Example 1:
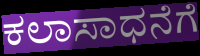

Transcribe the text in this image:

ಕಲಾಸಾಧನೆಗೆ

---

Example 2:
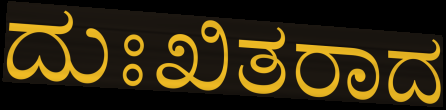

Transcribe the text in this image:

ದುಃಖಿತರಾದ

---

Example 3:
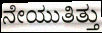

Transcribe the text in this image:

ನೇಯುತಿತ್ತು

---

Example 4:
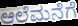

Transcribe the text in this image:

ಆಲೆಮನೆಗೆ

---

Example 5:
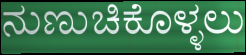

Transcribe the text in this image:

ನುಣುಚಿಕೊಳ್ಳಲು